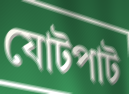
যোটপাট